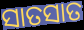
ସାତସାତ